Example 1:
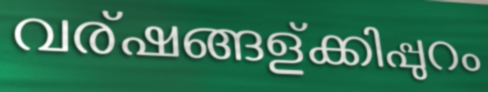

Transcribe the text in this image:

വര്ഷങ്ങള്ക്കിപ്പുറം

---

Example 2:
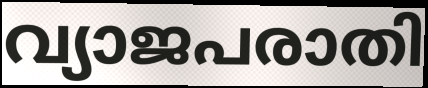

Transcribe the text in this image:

വ്യാജപരാതി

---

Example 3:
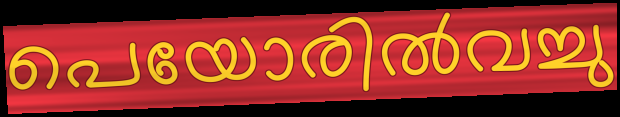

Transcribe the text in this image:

പെയോരിൽവച്ചു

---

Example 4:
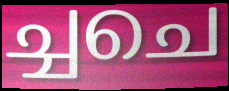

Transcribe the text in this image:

ച്ചചെ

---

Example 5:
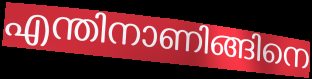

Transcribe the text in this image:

എന്തിനാണിങ്ങിനെ